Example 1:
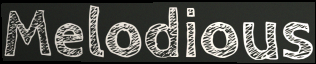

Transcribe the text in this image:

Melodious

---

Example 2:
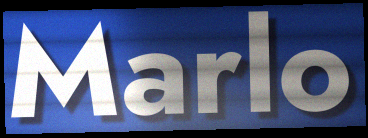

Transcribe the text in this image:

Marlo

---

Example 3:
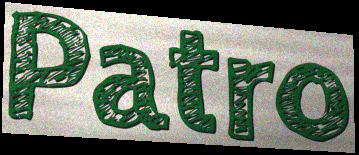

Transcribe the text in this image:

Patro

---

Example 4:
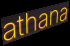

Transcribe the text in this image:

athana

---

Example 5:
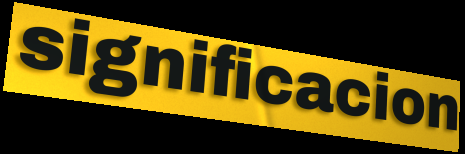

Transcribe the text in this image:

significacion